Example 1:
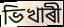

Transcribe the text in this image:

ভিখাৰী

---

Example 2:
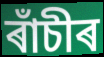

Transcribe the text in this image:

ৰাঁচীৰ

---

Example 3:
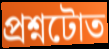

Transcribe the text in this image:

প্ৰশ্নটোত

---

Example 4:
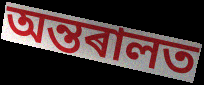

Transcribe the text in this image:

অন্তৰালত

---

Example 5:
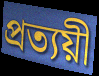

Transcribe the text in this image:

প্ৰত্যয়ী